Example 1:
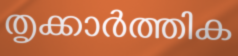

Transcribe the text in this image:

തൃക്കാർത്തിക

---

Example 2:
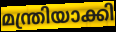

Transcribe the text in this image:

മന്ത്രിയാക്കി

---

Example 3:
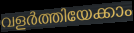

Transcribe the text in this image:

വളർത്തിയേക്കാം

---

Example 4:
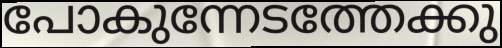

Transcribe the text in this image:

പോകുന്നേടത്തേക്കു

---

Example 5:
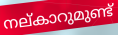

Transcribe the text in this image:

നല്കാറുമുണ്ട്